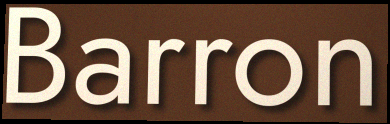
Barron